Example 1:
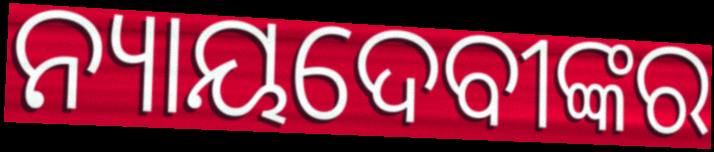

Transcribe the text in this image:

ନ୍ୟାୟଦେବୀଙ୍କର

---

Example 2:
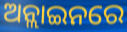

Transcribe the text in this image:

ଅନ୍ଲାଇନରେ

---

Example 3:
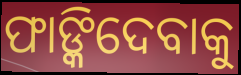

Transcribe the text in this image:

ଫାଙ୍କିଦେବାକୁ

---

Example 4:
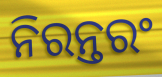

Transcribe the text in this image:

ନିରନ୍ତରଂ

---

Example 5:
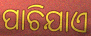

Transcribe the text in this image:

ପାଚିଯାଏ